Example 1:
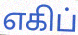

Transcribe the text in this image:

எகிப்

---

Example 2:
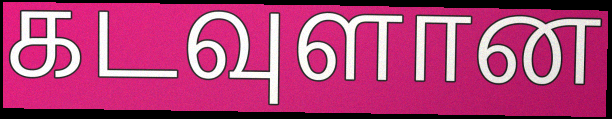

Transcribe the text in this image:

கடவுளான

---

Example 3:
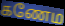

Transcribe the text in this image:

கணேம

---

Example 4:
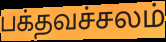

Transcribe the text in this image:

பக்தவச்சலம்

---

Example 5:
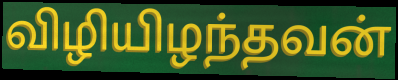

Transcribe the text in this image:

விழியிழந்தவன்